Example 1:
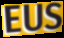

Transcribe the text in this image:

EUS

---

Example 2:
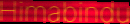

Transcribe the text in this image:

Himabindu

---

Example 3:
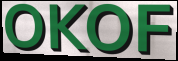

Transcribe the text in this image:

OKOF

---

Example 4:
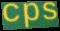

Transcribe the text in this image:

cps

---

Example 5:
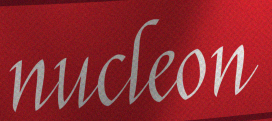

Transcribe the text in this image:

nucleon